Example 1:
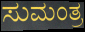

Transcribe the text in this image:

ಸುಮಂತ್ರ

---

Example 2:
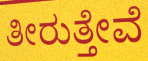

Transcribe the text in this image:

ತೀರುತ್ತೇವೆ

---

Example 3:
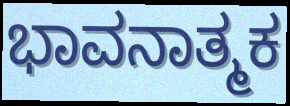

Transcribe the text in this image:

ಭಾವನಾತ್ಮಕ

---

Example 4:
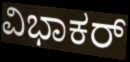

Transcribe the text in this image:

ವಿಭಾಕರ್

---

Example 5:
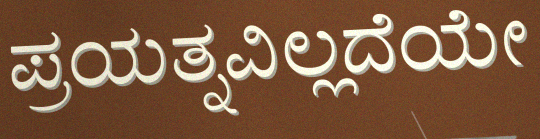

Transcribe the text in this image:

ಪ್ರಯತ್ನವಿಲ್ಲದೆಯೇ